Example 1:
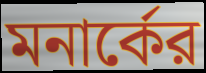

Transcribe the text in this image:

মনার্কের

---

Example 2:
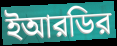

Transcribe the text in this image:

ইআরডির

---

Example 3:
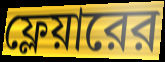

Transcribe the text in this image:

ফ্লেয়ারের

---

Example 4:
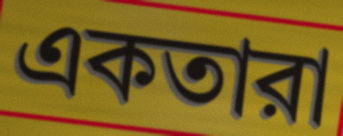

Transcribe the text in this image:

একতারা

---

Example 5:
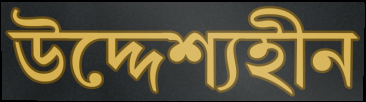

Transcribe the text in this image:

উদ্দেশ্যহীন